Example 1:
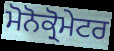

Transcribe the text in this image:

ਮੋਨੋਕ੍ਰੋਮੇਟਰ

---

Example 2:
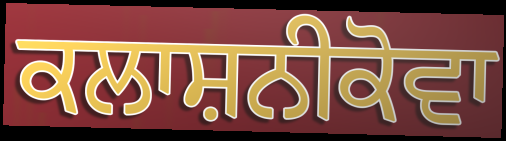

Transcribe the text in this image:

ਕਲਾਸ਼ਨੀਕੋਵਾ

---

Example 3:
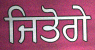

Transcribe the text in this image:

ਜਿਤੋਗੇ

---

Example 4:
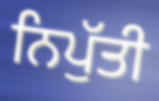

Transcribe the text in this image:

ਨਿਪੁੱਤੀ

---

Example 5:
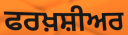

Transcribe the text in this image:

ਫਰਖ਼ਸ਼ੀਅਰ